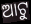
ଆଟୁ